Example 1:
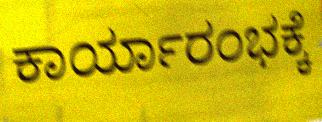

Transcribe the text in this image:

ಕಾರ್ಯಾರಂಭಕ್ಕೆ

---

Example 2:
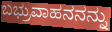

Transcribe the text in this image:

ಬಭ್ರುವಾಹನನನ್ನು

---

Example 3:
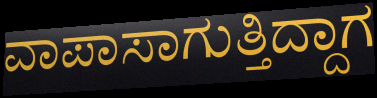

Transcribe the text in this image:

ವಾಪಾಸಾಗುತ್ತಿದ್ದಾಗ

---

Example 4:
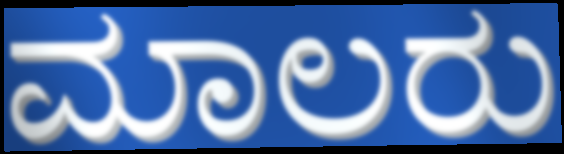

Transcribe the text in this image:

ಮಾಲರು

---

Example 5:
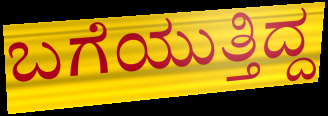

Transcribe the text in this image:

ಬಗೆಯುತ್ತಿದ್ದ